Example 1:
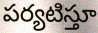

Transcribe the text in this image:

పర్యటిస్తూ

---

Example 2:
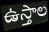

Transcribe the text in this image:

ఉస్తాల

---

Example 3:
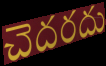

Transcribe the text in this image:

చెదరదు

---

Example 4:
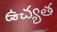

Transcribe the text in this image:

ఉచ్యత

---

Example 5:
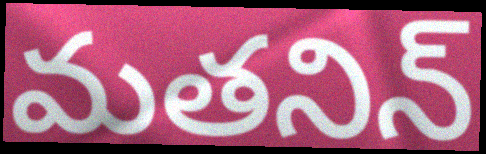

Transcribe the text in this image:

మతనిన్